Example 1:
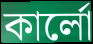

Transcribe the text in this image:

কার্লো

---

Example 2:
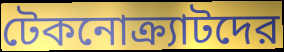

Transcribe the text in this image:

টেকনোক্র্যাটদের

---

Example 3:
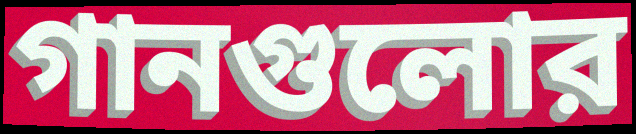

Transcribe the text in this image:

গানগুলোর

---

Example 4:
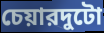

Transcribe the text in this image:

চেয়ারদুটো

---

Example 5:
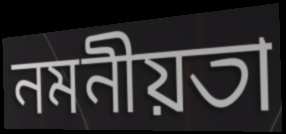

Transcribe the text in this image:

নমনীয়তা